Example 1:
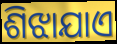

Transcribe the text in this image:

ଶିଝାଯାଏ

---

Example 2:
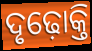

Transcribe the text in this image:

ଦୃଢ଼ୋକ୍ତି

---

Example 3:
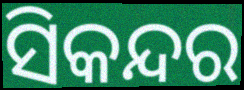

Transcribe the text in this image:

ସିକନ୍ଦର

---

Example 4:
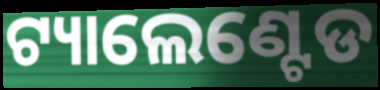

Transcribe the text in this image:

ଟ୍ୟାଲେଣ୍ଟେଡ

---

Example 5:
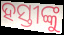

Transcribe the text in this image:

ହସ୍ତୀଙ୍କୁ